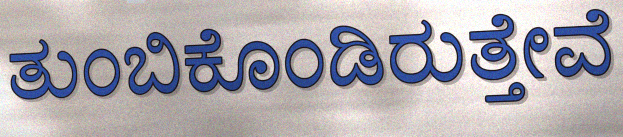
ತುಂಬಿಕೊಂಡಿರುತ್ತೇವೆ